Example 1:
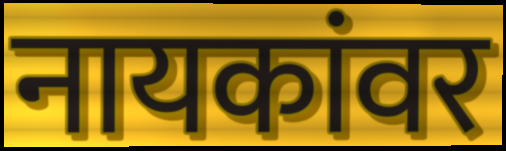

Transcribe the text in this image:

नायकांवर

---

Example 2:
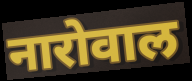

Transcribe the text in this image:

नारोवाल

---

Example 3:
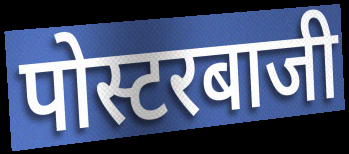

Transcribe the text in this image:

पोस्टरबाजी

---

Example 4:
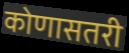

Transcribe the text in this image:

कोणासतरी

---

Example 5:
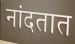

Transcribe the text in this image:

नांदतात